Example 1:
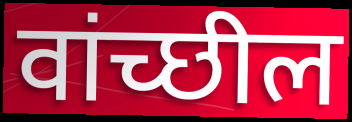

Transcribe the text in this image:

वांच्छील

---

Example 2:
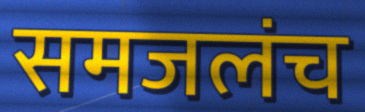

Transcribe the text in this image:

समजलंच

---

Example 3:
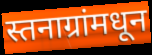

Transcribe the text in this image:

स्तनाग्रांमधून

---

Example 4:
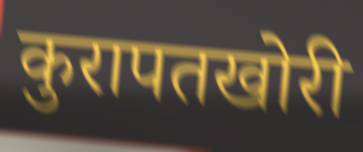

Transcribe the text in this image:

कुरापतखोरी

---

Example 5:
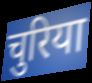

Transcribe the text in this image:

चुरिया